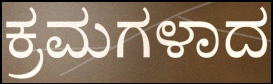
ಕ್ರಮಗಳಾದ